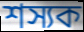
শস্যক